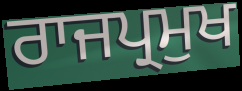
ਰਾਜਪ੍ਰਮੁਖ